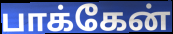
பாக்கேன்